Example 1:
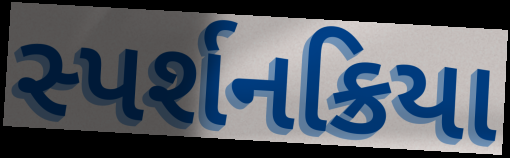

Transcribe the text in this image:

સ્પર્શનક્રિયા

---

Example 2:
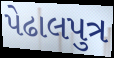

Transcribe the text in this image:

પેઢાલપુત્ર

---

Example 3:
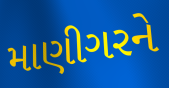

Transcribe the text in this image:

માણીગરને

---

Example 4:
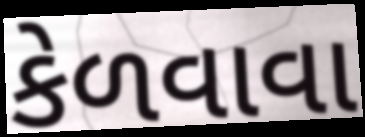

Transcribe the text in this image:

કેળવાવા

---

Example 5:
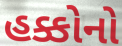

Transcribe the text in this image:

હક્કોનો